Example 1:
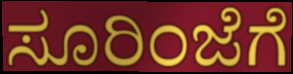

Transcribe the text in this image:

ಸೂರಿಂಜೆಗೆ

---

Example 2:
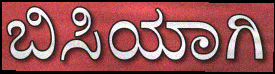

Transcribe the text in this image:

ಬಿಸಿಯಾಗಿ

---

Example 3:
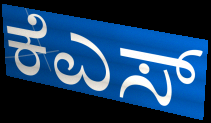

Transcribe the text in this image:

ಕೆಎಸ್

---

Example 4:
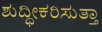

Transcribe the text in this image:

ಶುದ್ಧೀಕರಿಸುತ್ತಾ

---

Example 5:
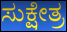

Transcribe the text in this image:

ಸುಕ್ಷೇತ್ರ